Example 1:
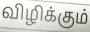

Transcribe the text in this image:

விழிக்கும்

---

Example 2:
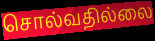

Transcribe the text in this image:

சொல்வதில்லை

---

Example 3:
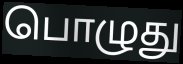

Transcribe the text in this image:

பொழுது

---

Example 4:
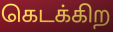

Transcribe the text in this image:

கெடக்கிற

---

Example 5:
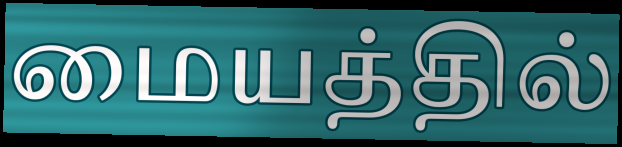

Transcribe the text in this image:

மையத்தில்